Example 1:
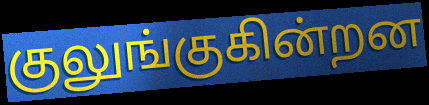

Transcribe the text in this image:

குலுங்குகின்றன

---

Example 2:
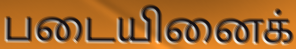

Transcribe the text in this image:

படையினைக்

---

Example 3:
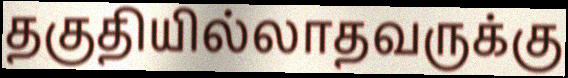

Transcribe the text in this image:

தகுதியில்லாதவருக்கு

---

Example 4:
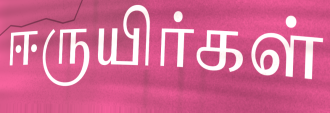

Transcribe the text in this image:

ஈருயிர்கள்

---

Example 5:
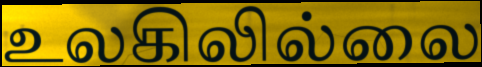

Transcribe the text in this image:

உலகிலில்லை